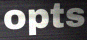
opts